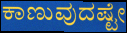
ಕಾಣುವುದಷ್ಟೇ